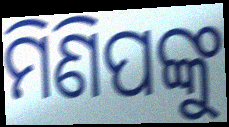
ମିଣିପଙ୍କୁ